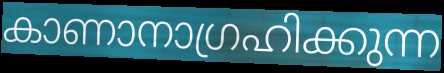
കാണാനാഗ്രഹിക്കുന്ന